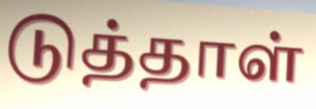
டுத்தாள்